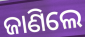
ଜାଣିଲେ